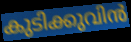
കുടിക്കുവിൻ